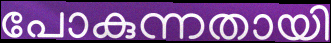
പോകുന്നതായി